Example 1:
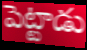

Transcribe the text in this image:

పెట్టాడు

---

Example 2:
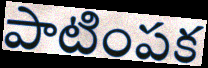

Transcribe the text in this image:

పాటింపక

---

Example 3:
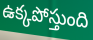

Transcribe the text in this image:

ఉక్కపోస్తుంది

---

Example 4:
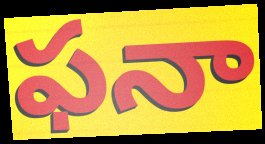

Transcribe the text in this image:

ఫనా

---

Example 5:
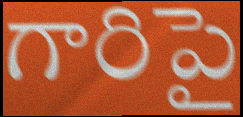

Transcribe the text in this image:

గారిపై